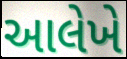
આલેખે